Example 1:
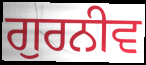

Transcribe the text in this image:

ਗੁਰਨੀਵ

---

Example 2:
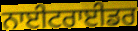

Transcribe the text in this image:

ਨਾਈਟਰਾਈਡਰ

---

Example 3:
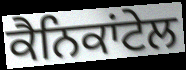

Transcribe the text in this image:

ਕੈਨਿਕਾਂਟੇਲ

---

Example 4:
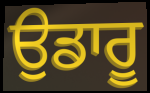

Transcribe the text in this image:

ਉਡਾਰੂ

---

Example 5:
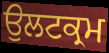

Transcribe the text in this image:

ਉਲਟਕ੍ਰਮ